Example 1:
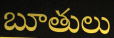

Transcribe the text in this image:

బూతులు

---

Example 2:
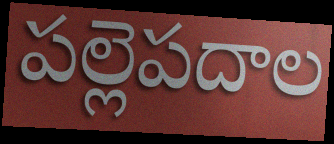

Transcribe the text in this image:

పల్లెపదాల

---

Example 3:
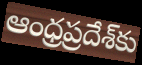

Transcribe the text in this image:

ఆంధ్రప్రదేశ్‌కు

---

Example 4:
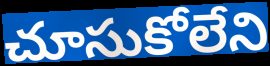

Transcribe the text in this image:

చూసుకోలేని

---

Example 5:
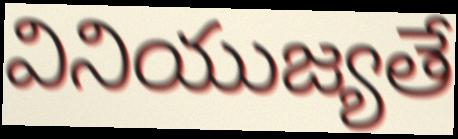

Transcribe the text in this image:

వినియుజ్యతే